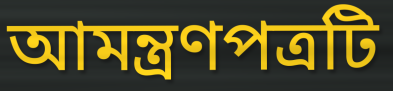
আমন্ত্রণপত্রটি